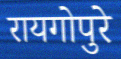
रायगोपुरे